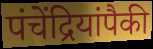
पंचेंद्रियांपैकी